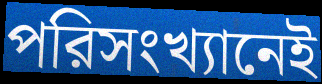
পরিসংখ্যানেই